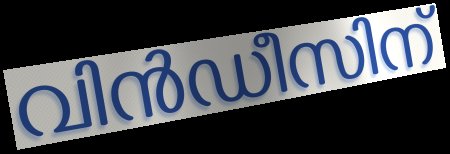
വിൻഡീസിന്